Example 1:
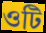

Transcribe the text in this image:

ওটি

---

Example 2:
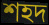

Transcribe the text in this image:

শহদ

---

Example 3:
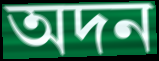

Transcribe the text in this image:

অদন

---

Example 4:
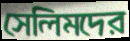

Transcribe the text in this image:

সেলিমদের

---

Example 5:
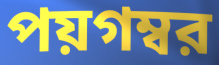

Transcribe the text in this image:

পয়গম্বর